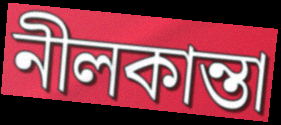
নীলকান্তা